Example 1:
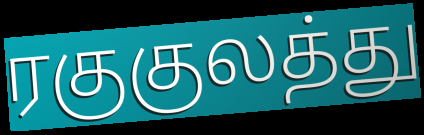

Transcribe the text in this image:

ரகுகுலத்து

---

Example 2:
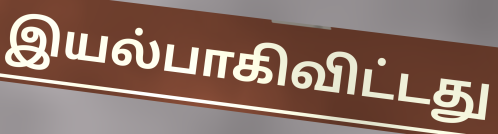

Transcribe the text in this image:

இயல்பாகிவிட்டது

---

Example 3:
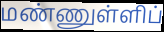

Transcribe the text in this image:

மண்ணுள்ளிப்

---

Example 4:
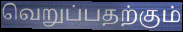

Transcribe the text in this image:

வெறுப்பதற்கும்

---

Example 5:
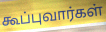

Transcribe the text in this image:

கூப்புவார்கள்